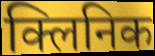
क्लिनिक